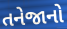
તનેજાનો